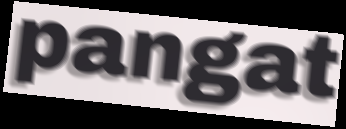
pangat